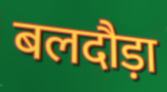
बलदौड़ा